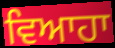
ਵਿਆਹਾ